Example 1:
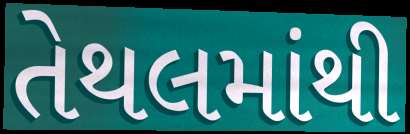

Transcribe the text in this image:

તેથલમાંથી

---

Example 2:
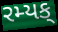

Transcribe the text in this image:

રમ્યક્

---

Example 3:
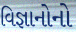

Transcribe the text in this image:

વિજ્ઞાનોનો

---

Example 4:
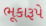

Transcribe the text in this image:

ભૂકારૂપે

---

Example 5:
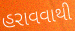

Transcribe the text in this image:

હરાવવાથી